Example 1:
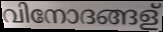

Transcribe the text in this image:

വിനോദങ്ങള്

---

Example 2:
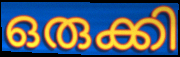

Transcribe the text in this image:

ഒരുക്കി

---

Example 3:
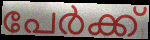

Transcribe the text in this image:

പേർക്ക്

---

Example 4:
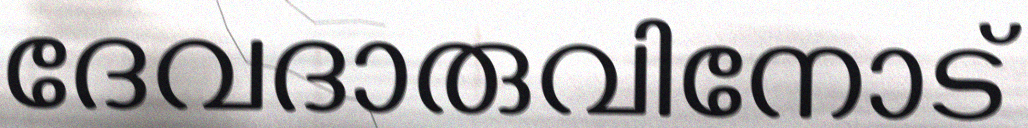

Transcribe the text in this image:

ദേവദാരുവിനോട്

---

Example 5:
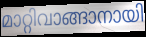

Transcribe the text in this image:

മാറ്റിവാങ്ങാനായി